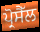
ਪ੍ਰੋਸੈੱਲ